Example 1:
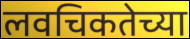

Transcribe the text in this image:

लवचिकतेच्या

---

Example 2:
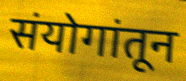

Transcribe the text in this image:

संयोगांतून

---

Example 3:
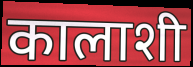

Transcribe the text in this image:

कालाशी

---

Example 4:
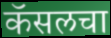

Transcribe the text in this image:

कॅसलचा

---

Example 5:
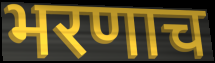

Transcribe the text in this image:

भरणाच